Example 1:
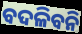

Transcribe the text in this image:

ବଦଳିବନି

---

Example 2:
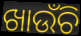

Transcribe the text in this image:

ଖାଉଁଚି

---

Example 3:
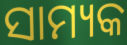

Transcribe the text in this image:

ସାମ୍ୟକ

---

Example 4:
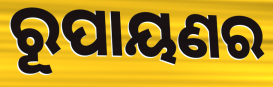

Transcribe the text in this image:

ରୂପାୟଣର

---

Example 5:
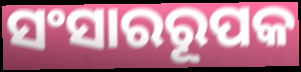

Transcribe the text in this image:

ସଂସାରରୂପକ